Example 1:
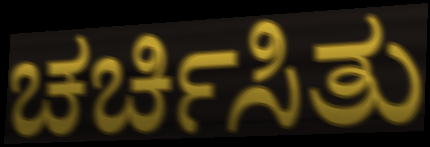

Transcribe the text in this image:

ಚರ್ಚಿಸಿತು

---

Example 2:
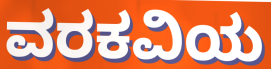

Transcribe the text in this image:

ವರಕವಿಯ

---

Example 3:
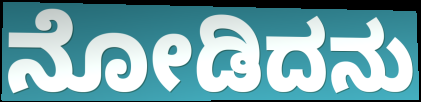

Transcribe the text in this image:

ನೋಡಿದನು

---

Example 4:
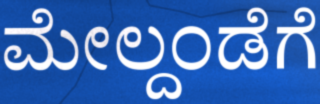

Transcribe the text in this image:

ಮೇಲ್ದಂಡೆಗೆ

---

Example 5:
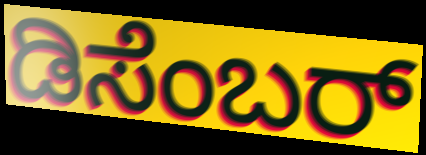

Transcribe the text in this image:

ಡಿಸೆಂಬರ್